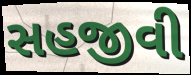
સહજીવી